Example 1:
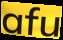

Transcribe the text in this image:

afu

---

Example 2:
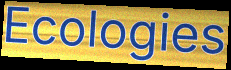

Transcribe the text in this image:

Ecologies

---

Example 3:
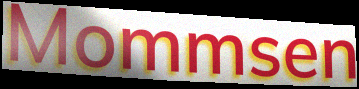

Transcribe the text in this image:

Mommsen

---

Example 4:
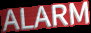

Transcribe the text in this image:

ALARM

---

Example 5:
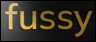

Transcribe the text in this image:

fussy